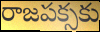
రాజపక్సకు